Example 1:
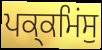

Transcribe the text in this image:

ਪਕ੍ਕਮਿਂਸੁ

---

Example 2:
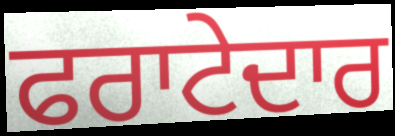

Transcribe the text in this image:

ਫਰਾਟੇਦਾਰ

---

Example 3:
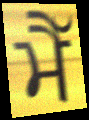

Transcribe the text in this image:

ਮੈੱ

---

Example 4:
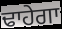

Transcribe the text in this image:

ਢਾਹੇਗਾ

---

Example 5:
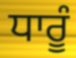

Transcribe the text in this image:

ਧਾਰੂੰ